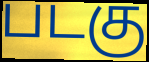
படகு